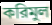
করিমুল